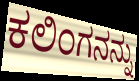
ಕಲಿಂಗನನ್ನು